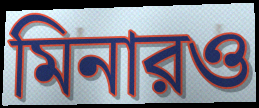
মিনারও